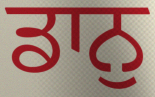
ਡਾਨੁ